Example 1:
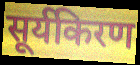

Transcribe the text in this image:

सूर्यकिरण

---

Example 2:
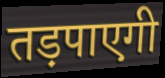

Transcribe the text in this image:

तड़पाएगी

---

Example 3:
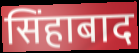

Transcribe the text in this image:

सिंहाबाद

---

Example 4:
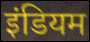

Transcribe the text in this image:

इंडियम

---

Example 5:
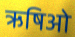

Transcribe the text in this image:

ऋषिओ